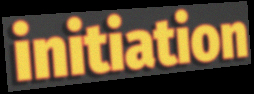
initiation